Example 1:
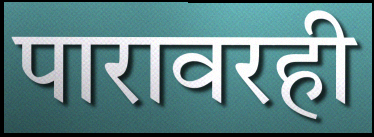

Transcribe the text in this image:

पारावरही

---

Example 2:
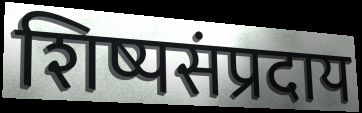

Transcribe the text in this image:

शिष्यसंप्रदाय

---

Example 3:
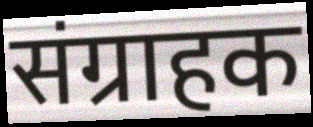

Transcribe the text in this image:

संग्राहक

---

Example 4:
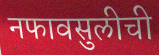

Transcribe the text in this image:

नफावसुलीची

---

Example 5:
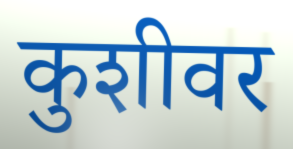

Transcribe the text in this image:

कुशीवर